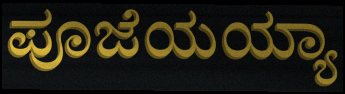
ಪೂಜೆಯಯ್ಯಾ